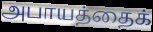
அபாயத்தைக்